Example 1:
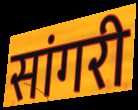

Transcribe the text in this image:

सांगरी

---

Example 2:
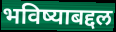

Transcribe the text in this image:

भविष्याबद्दल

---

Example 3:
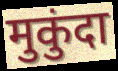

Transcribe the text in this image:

मुकुंदा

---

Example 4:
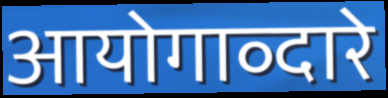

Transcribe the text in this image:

आयोगाव्दारे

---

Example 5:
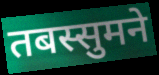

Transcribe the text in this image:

तबस्सुमने